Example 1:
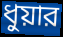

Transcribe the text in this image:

ধুয়ার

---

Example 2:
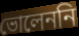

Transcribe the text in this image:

ভোলেননি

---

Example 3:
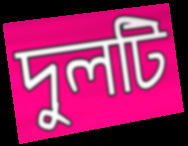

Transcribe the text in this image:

দুলটি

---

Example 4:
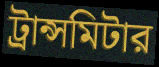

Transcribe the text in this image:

ট্রান্সমিটার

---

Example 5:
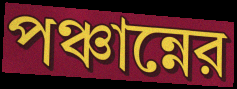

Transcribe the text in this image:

পঞ্চান্নের